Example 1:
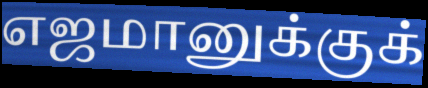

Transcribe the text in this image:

எஜமானுக்குக்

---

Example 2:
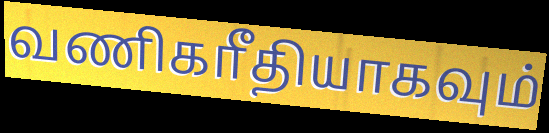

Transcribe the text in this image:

வணிகரீதியாகவும்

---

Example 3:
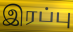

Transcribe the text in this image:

இரப்பு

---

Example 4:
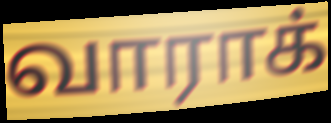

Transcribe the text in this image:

வாராக்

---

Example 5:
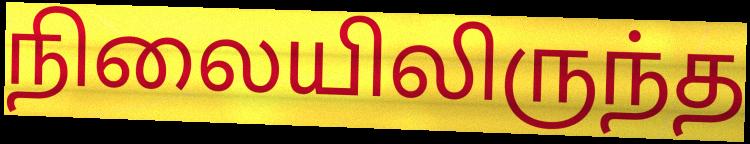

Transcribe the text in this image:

நிலையிலிருந்த